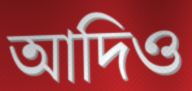
আদিও